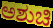
ಅಶುಚಿ